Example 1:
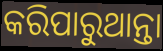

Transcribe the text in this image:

କରିପାରୁଥାନ୍ତା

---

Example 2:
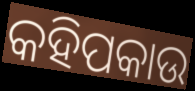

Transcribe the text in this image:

କହିପକାଉ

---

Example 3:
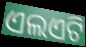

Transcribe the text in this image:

ଏଲଏଟି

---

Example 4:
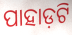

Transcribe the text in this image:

ପାହାଡ଼ଟି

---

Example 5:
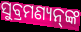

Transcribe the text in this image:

ସୁବ୍ରମଣ୍ୟନ୍‌ଙ୍କ